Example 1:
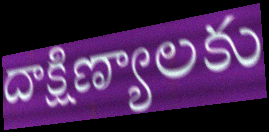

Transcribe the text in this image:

దాక్షిణ్యాలకు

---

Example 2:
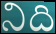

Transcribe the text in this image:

నిది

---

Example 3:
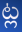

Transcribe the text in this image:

ట్ల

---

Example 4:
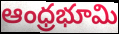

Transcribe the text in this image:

ఆంధ్రభూమి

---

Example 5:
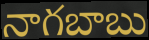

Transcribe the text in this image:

నాగబాబు